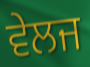
ਵੇਲਜ